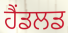
ਹੈਂਡਲਡ